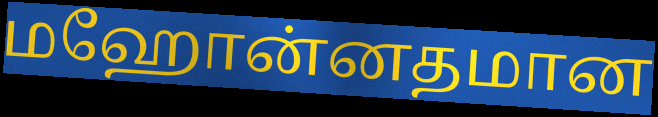
மஹோன்னதமான